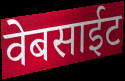
वेबसाईट